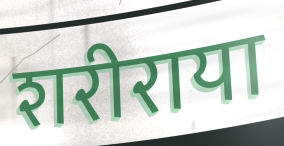
शरीराया